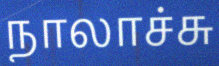
நாலாச்சு